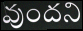
వుందని